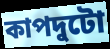
কাপদুটো